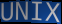
UNIX